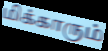
மிக்காரும்